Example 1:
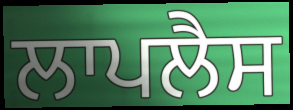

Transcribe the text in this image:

ਲਾਪਲੈਸ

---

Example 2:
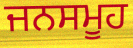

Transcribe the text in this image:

ਜਨਸਮੂਹ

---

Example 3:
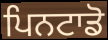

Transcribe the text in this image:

ਪਿਨਟਾਡੋ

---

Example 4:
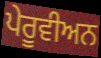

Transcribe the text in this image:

ਪੇਰੂਵੀਅਨ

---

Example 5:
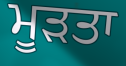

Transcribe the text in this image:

ਮੂੜਤਾ